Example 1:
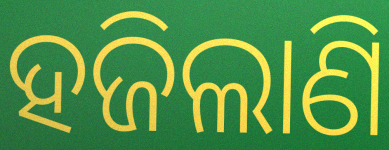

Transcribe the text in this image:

ହଜିଲାଣି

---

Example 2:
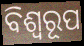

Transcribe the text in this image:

ବିଶ୍ଵରୂପ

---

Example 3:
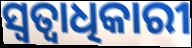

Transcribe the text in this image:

ସ୍ଵତ୍ୱାଧିକାରୀ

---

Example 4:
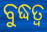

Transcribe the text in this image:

ବୁଦ୍ଧତ୍ୱ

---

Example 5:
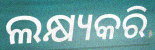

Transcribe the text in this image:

ଲକ୍ଷ୍ୟକରି